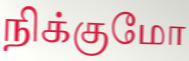
நிக்குமோ